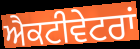
ਐਕਟੀਵੇਟਰਾਂ